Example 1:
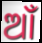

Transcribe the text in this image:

ଆଁ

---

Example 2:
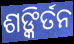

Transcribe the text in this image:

ଶଙ୍କିର୍ତନ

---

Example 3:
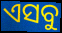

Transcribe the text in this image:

ଏସବୁ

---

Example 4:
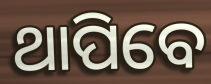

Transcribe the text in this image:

ଥାପିବେ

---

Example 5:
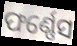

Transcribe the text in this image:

ଫର୍ଣ୍ଣେସ